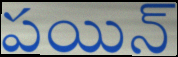
పయిన్